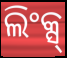
ଲିଂକ୍ସ୍